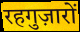
रहगुज़ारों